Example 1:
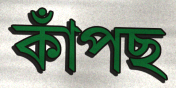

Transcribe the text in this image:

কাঁপছ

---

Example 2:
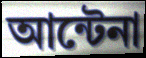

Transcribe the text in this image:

আন্টেনা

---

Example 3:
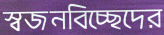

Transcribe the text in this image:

স্বজনবিচ্ছেদের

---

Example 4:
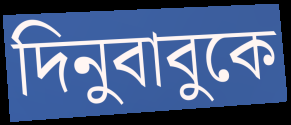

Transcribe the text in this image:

দিনুবাবুকে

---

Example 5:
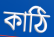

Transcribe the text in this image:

কাঠি